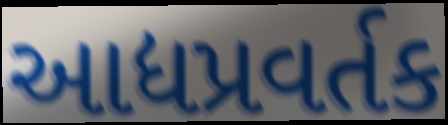
આદ્યપ્રવર્તક